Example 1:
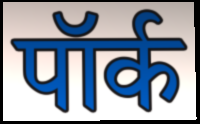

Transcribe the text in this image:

पॉर्क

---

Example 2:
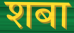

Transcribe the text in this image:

शबा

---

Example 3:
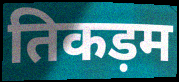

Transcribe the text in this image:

तिकड़म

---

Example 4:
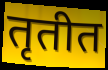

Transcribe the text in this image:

तृतीत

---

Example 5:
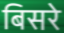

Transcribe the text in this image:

बिसरे